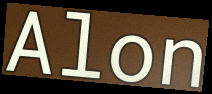
Alon